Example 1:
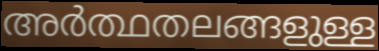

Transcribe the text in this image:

അർത്ഥതലങ്ങളുള്ള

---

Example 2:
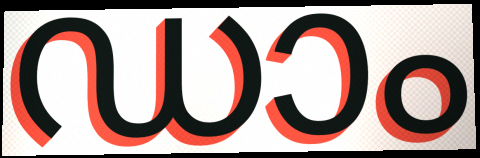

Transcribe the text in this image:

ഡാം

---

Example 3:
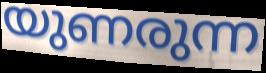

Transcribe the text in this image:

യുണരുന്ന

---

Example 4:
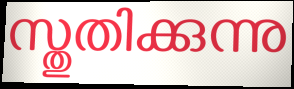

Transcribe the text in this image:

സ്തുതിക്കുന്നു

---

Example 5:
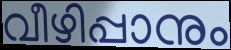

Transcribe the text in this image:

വീഴിപ്പാനും